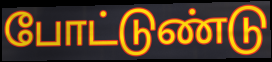
போட்டுண்டு